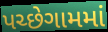
પચ્છેગામમાં